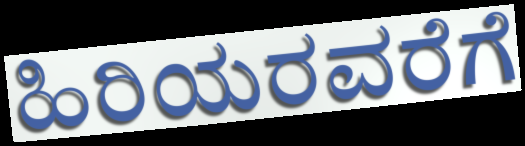
ಹಿರಿಯರವರೆಗೆ